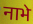
नाभे